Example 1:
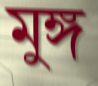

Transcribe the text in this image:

মুঙ্গ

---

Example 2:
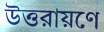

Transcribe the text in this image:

উত্তরায়ণে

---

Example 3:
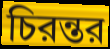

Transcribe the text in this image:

চিরন্তর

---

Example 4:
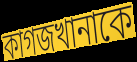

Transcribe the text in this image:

কাগজখানাকে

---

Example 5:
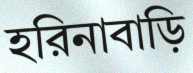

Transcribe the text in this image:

হরিনাবাড়ি